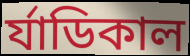
র্যাডিকাল